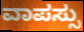
ವಾಪಸ್ಸು